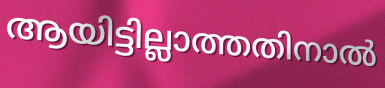
ആയിട്ടില്ലാത്തതിനാൽ